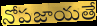
నోపజాయతే